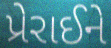
પ્રેરાઈને